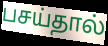
பசய்தால்